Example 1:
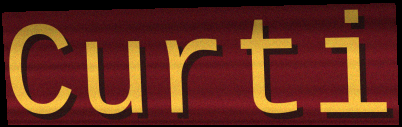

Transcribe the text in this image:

Curti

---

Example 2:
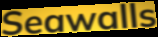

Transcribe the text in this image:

Seawalls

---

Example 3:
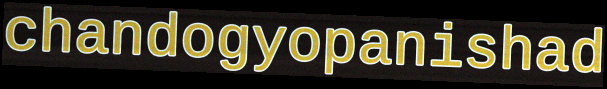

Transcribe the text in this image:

chandogyopanishad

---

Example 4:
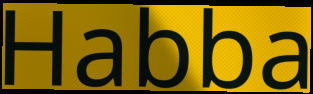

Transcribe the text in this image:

Habba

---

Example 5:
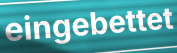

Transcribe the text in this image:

eingebettet